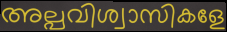
അല്പവിശ്വാസികളേ